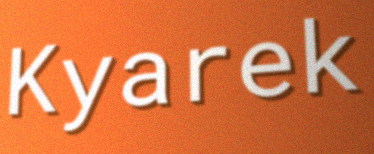
Kyarek